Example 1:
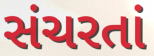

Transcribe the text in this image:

સંચરતાં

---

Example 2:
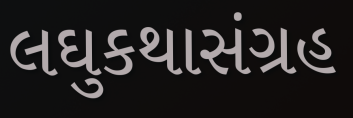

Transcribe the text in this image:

લઘુકથાસંગ્રહ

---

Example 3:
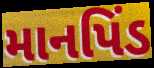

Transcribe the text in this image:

માનપિંડ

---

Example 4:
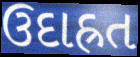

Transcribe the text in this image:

ઉદાહ્રત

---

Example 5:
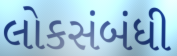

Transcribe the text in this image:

લોકસંબંધી